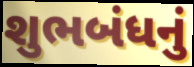
શુભબંધનું